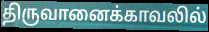
திருவானைக்காவலில்